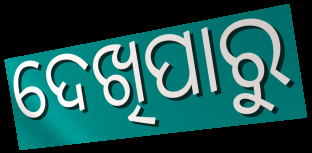
ଦେଖିପାରୁ